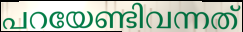
പറയേണ്ടിവന്നത്